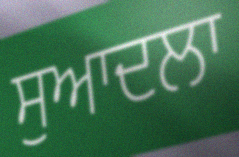
ਸੁਆਦਲਾ